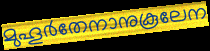
മുഹൂർതേനാനുകൂലേന